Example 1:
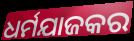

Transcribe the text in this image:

ଧର୍ମଯାଜକର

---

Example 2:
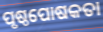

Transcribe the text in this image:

ପୃଷ୍ଠପୋଷକତା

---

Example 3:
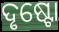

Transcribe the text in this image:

ଦୃଷ୍ଟୋ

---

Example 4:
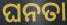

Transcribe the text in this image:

ଘନତା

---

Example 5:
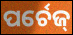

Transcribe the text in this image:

ପର୍ଚେଜ୍